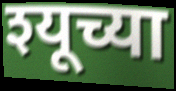
श्यूच्या